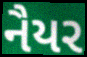
નૈયર